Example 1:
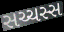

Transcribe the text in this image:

સચ્ચસ્સ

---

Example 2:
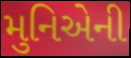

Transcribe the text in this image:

મુનિએની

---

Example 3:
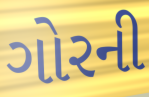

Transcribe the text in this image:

ગોરની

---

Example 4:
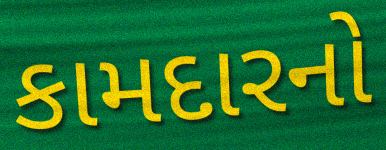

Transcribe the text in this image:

કામદારનો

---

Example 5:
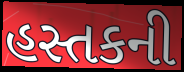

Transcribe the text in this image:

હસ્તકની